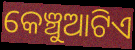
କେଞ୍ଚୁଆଟିଏ